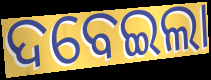
ଦବେଇଲା